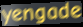
yengade